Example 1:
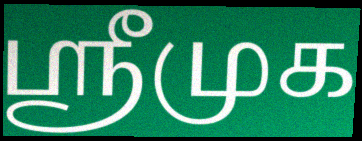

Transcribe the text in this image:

ஸ்ரீமுக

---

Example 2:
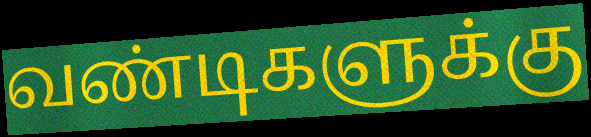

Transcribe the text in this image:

வண்டிகளுக்கு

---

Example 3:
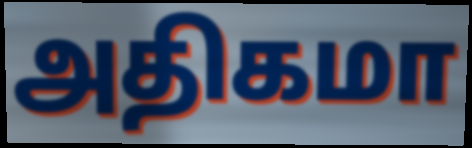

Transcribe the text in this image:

அதிகமா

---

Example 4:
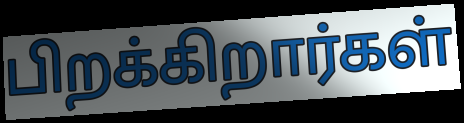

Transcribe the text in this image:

பிறக்கிறார்கள்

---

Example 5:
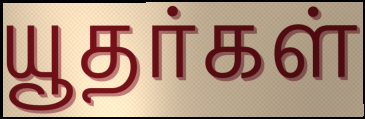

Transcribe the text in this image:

யூதர்கள்